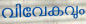
വിവേകവും